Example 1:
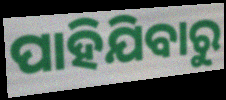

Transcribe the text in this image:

ପାହିଯିବାରୁ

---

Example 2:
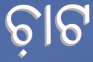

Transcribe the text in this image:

ଚ଼ାଟ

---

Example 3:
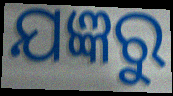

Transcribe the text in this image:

ଯଜ୍ଞରୁ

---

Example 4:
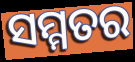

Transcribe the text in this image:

ସମ୍ମତର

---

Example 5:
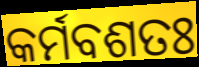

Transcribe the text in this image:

କର୍ମବଶତଃ